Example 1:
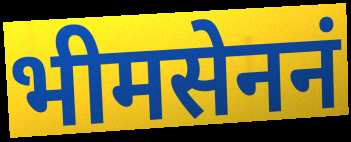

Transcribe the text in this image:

भीमसेननं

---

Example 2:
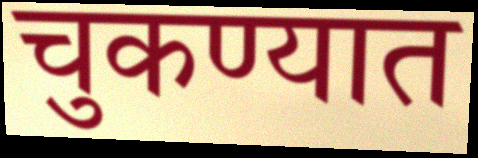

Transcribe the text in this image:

चुकण्यात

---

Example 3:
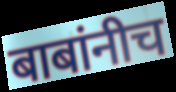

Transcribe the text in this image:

बाबांनीच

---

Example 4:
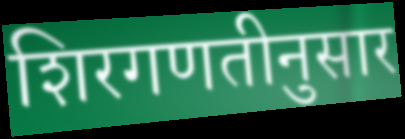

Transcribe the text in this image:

शिरगणतीनुसार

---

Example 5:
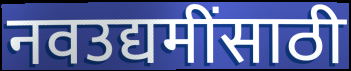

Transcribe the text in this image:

नवउद्यमींसाठी